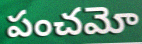
పంచమో